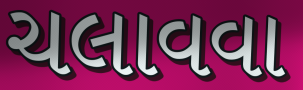
ચલાવવા